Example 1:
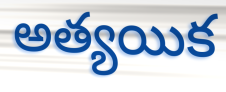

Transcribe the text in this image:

అత్యయిక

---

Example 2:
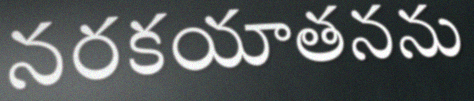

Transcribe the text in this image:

నరకయాతనను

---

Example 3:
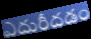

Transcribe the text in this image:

ఎదురీదడం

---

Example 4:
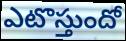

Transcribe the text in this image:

ఎటొస్తుందో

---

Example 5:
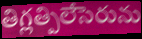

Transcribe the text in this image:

తిగ్లత్పిలేసెరును